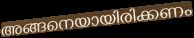
അങ്ങനെയായിരിക്കണം